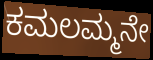
ಕಮಲಮ್ಮನೇ